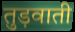
तुड़वाती